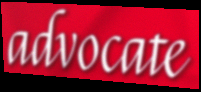
advocate